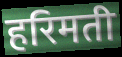
हरिमती